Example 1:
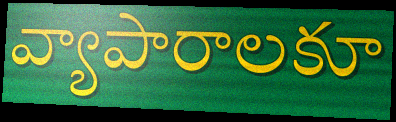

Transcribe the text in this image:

వ్యాపారాలకూ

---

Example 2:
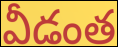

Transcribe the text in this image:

వీడంత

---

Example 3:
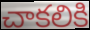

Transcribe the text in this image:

చాకలికి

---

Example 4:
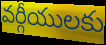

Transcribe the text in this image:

వర్గీయులకు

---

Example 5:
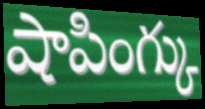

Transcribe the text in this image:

షాపింగ్కు